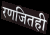
रणजितही